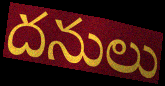
దనులు